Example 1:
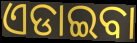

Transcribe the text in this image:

ଏଡାଇବା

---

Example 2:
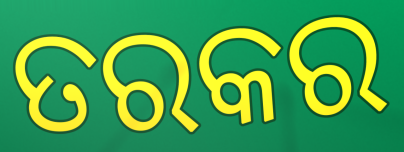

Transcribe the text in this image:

ତରକର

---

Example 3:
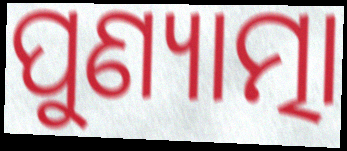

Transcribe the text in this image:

ପୁଣ୍ୟାତ୍ମା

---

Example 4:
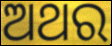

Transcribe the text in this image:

ଅଥର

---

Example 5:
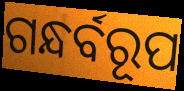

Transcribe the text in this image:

ଗନ୍ଧର୍ବରୂପ